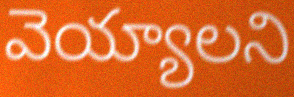
వెయ్యాలని